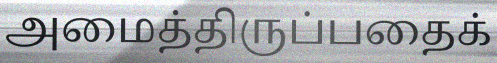
அமைத்திருப்பதைக்